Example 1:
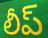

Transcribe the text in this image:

లీప్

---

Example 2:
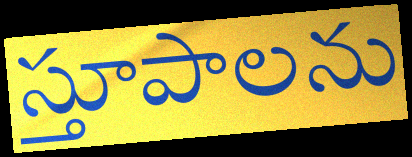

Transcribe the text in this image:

స్తూపాలను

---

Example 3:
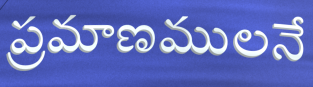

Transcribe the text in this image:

ప్రమాణములనే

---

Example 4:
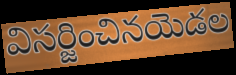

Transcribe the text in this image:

విసర్జించినయెడల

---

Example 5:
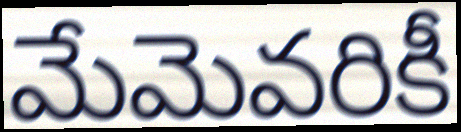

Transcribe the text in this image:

మేమెవరికీ